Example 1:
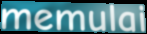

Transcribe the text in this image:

memulai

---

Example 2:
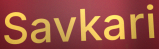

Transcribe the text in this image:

Savkari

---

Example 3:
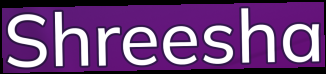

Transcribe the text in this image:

Shreesha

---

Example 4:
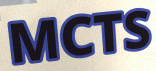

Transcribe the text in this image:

MCTS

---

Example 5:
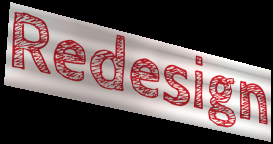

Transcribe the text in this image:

Redesign